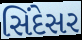
સિંદેસર